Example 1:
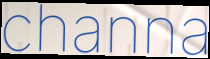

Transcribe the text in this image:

channa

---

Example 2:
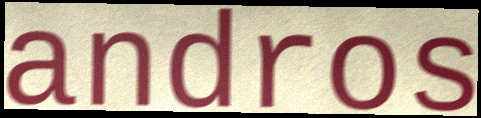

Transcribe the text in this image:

andros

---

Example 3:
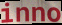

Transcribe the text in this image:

inno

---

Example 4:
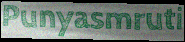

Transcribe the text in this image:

Punyasmruti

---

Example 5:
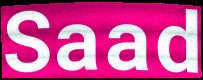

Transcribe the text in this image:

Saad